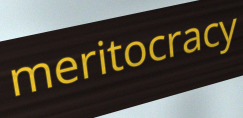
meritocracy